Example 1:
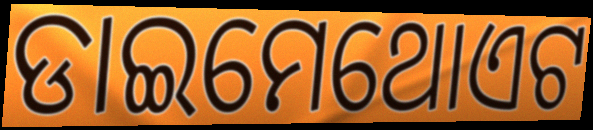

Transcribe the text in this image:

ଡାଇମେଥୋଏଟ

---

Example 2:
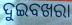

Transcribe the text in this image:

ଦୁଇବଖରା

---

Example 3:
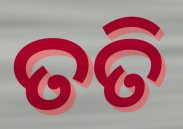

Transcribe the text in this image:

ତତି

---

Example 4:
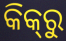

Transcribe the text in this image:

କିକ୍‍ରୁ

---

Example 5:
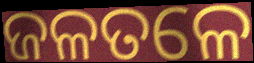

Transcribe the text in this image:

ଜଳତଳେ